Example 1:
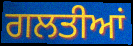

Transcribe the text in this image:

ਗਲਤੀਆਂ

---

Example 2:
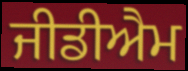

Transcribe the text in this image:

ਜੀਡੀਐਮ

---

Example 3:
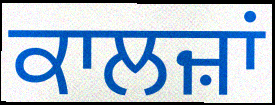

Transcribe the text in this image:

ਕਾਲਜ਼ਾਂ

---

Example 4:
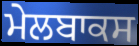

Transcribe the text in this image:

ਮੇਲਬਾਕਸ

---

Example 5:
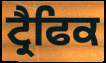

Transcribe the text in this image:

ਟ੍ਰੈਫਿਕ